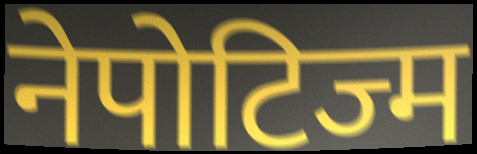
नेपोटिज्‍म